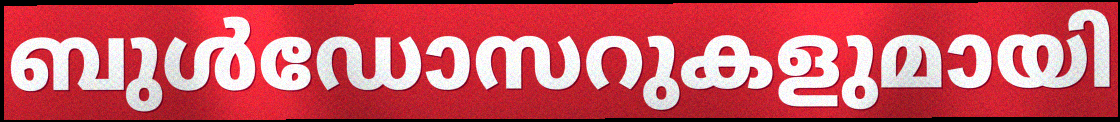
ബുൾഡോസറുകളുമായി